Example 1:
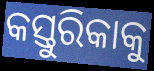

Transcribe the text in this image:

କସ୍ତୁରିକାକୁ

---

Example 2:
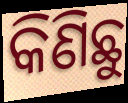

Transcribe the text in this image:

କିଣିଛୁ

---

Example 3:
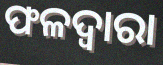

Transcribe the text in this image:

ଫଳଦ୍ୱାରା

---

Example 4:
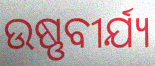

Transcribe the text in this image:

ଉଷ୍ଣବୀର୍ଯ୍ୟ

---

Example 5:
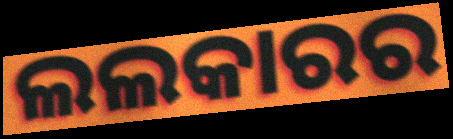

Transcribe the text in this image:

ଲଲକାରର